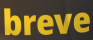
breve